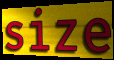
size